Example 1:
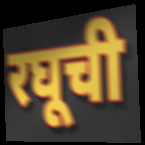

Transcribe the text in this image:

रघूची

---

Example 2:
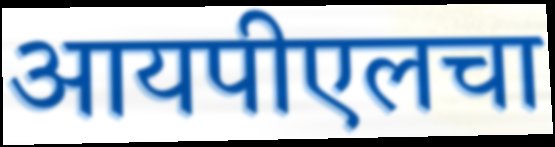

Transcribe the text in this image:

आयपीएलचा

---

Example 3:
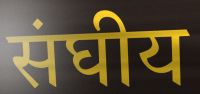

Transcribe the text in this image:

संघीय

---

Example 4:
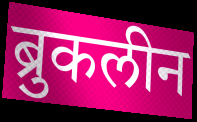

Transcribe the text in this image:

ब्रुकलीन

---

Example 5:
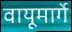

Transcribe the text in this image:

वायूमार्गे